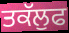
ਤਕੱਲੁਫ